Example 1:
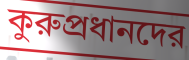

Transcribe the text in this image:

কুরুপ্রধানদের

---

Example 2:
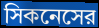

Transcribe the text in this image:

সিকনেসের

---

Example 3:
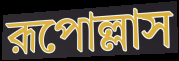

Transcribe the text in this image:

রূপোল্লাস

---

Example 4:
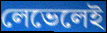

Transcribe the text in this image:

লেভেলেই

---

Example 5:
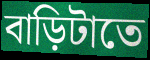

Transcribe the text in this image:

বাড়িটাতে